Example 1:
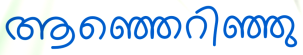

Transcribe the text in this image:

ആഞ്ഞെറിഞ്ഞു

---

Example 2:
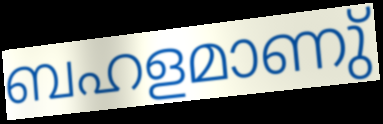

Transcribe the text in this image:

ബഹളമാണു്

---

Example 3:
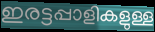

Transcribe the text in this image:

ഇരട്ടപ്പാളികളുള്ള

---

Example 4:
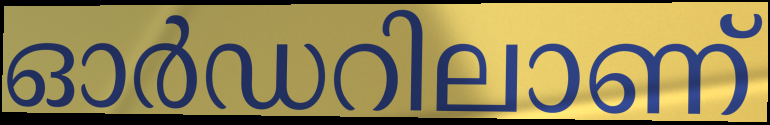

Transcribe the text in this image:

ഓർഡറിലാണ്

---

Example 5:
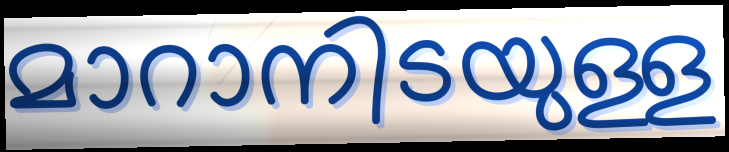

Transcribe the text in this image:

മാറാനിടയുള്ള